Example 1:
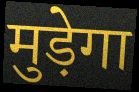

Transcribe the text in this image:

मुड़ेगा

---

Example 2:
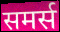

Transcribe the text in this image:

समर्स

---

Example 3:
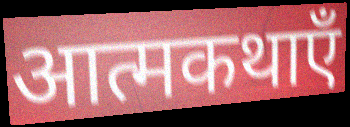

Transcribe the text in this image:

आत्मकथाएँ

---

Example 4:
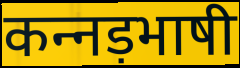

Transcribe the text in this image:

कन्नड़भाषी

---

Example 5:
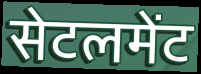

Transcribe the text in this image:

सेटलमेंट